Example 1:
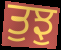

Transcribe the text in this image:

ਤੁਝੁ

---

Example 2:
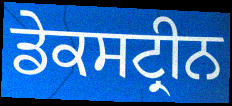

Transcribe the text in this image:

ਡੇਕਸਟ੍ਰੀਨ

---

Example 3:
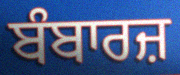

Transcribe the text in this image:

ਬੰਬਾਰਜ਼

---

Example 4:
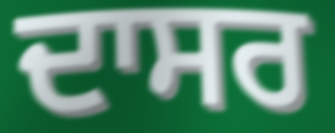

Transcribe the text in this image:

ਦਾਸਰ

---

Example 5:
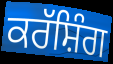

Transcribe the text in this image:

ਕਰੱਸ਼ਿੰਗ